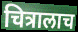
चित्रालाच